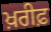
ਖ਼ਰੀਫ਼